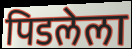
पिडलेला